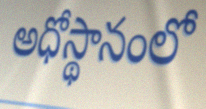
అధోస్థానంలో